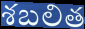
శబలిత